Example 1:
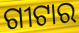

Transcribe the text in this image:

ଗୀଟାର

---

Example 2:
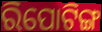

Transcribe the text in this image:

ରିପୋଟିଙ୍ଗ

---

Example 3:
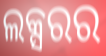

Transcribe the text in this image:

ଲକ୍ସରର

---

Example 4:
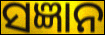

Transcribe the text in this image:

ସଜ୍ଞାନ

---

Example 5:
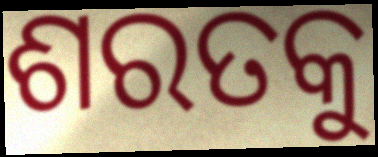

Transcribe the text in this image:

ଶରତକୁ